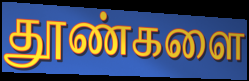
தூண்களை